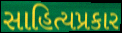
સાહિત્યપ્રકાર